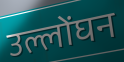
उल्लोंघन